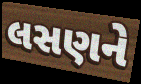
લસણને